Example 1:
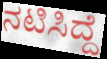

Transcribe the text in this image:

ನಟಿಸಿದ್ದೆ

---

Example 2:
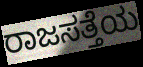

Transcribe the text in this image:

ರಾಜಸತ್ತೆಯ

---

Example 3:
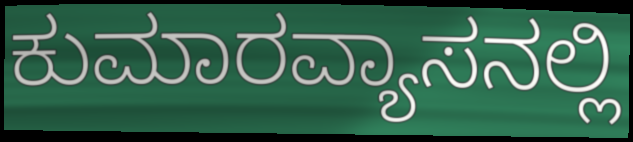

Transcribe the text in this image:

ಕುಮಾರವ್ಯಾಸನಲ್ಲಿ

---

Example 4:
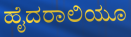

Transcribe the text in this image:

ಹೈದರಾಲಿಯೂ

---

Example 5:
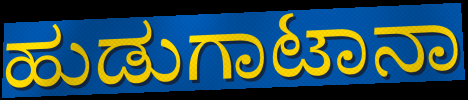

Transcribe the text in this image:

ಹುಡುಗಾಟಾನಾ